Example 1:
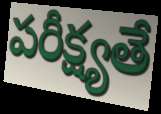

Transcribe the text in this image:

పరీక్ష్యతే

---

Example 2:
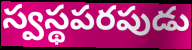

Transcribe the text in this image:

స్వస్థపరపుడు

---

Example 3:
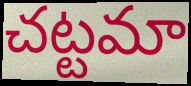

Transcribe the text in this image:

చట్టమా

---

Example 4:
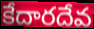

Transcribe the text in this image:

కేదారదేవ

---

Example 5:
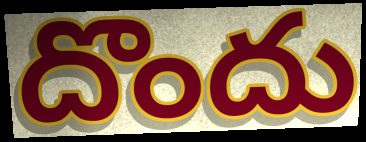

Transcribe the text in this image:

దొందు